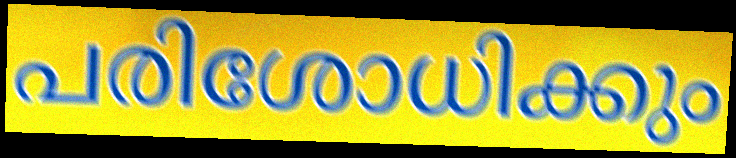
പരിശോധിക്കും